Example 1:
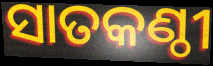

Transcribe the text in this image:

ସାତକଣ୍ଠୀ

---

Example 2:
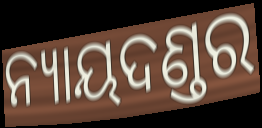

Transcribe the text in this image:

ନ୍ୟାୟଦଣ୍ଡର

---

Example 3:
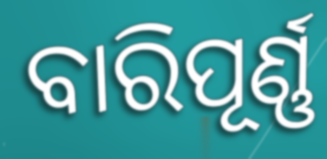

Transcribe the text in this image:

ବାରିପୂର୍ଣ୍ଣ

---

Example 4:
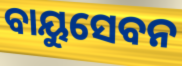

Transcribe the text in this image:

ବାୟୁସେବନ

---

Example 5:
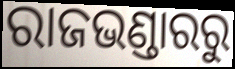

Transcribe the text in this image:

ରାଜଭଣ୍ଡାରରୁ